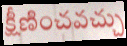
క్షీణించవచ్చు